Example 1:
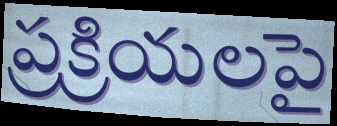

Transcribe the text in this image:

ప్రక్రియలపై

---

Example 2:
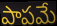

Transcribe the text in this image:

పాపమే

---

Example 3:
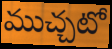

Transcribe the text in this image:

ముచ్చటో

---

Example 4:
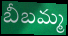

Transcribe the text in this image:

బీబమ్మ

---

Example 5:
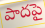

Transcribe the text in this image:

పాదపై